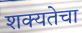
शक्‍यतेचा